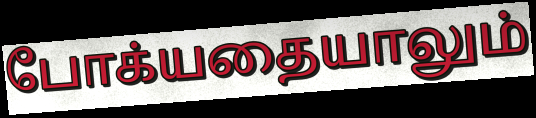
போக்யதையாலும்